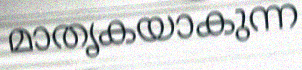
മാതൃകയാകുന്ന